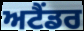
ਅਟੈਂਡਰ